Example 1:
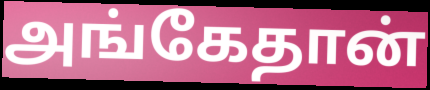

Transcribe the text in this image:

அங்கேதான்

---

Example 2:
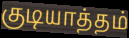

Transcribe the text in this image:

குடியாத்தம்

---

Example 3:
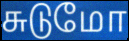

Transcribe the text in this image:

சுடுமோ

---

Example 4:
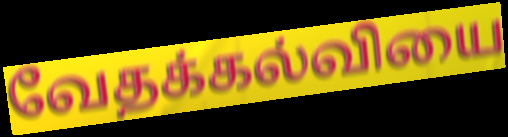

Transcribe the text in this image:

வேதக்கல்வியை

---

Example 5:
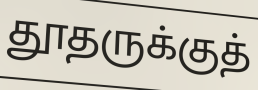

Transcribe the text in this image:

தூதருக்குத்